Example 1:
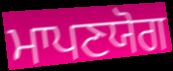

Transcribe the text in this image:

ਮਾਪਣਯੋਗ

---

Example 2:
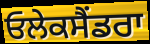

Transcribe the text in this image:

ਓਲੇਕਸੈਂਡਰਾ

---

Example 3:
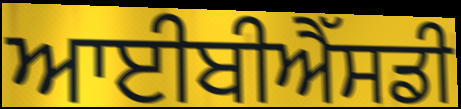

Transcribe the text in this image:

ਆਈਬੀਐੱਸਡੀ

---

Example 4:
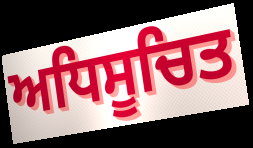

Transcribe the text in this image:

ਅਧਿਸੂਚਿਤ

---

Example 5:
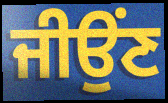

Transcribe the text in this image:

ਜੀਉਂਣ